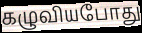
கழுவியபோது